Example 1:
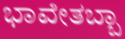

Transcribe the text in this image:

ಭಾವೇತಬ್ಬಾ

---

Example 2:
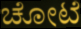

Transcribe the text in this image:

ಚೋಟೆ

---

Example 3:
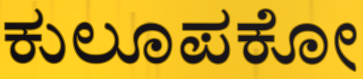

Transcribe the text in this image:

ಕುಲೂಪಕೋ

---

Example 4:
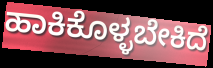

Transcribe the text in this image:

ಹಾಕಿಕೊಳ್ಳಬೇಕಿದೆ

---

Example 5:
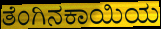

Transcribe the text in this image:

ತೆಂಗಿನಕಾಯಿಯ